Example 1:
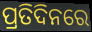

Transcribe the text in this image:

ପ୍ରତିଦିନରେ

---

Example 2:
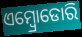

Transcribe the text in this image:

ଏମ୍ବ୍ରୋଡୋରି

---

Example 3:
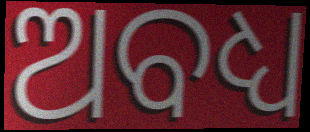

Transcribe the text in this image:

ଅବଧ୍ୟ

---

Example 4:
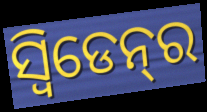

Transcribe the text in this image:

ସ୍ୱିଡେନ୍‍ର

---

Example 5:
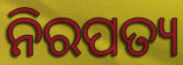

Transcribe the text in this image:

ନିରପତ୍ୟ